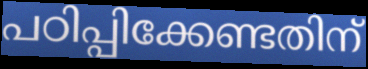
പഠിപ്പിക്കേണ്ടതിന്